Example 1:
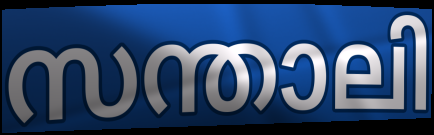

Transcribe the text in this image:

സന്താലി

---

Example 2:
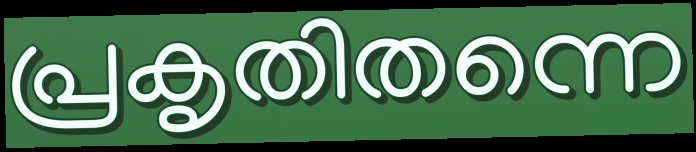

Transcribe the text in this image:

പ്രകൃതിതന്നെ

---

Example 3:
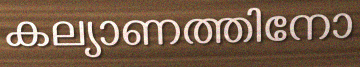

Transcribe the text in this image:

കല്യാണത്തിനോ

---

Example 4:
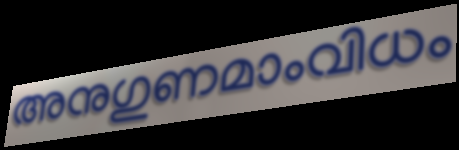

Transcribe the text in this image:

അനുഗുണമാംവിധം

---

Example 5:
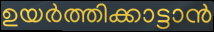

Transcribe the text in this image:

ഉയർത്തിക്കാട്ടാൻ